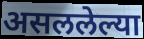
असललेल्या